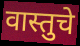
वास्तुचे